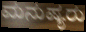
ಮನುಷ್ಯರು